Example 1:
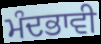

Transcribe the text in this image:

ਮੰਦਭਾਵੀ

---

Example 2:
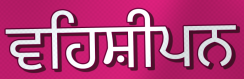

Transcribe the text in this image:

ਵਹਿਸ਼ੀਪਨ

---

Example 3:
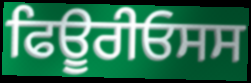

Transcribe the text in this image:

ਫਿਊਰੀਓਸਸ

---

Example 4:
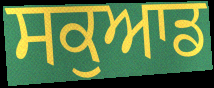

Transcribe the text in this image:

ਸਕੁਆਡ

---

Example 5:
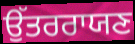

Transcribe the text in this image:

ਉੱਤਰਰਾਯਣ